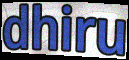
dhiru